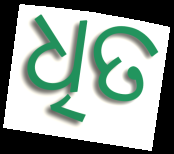
ଧିତ